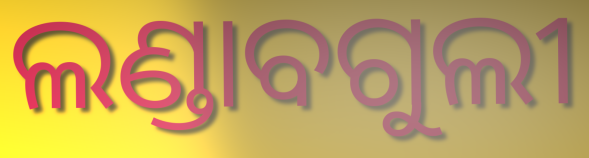
ଲଣ୍ଡାବଗୁଲୀ